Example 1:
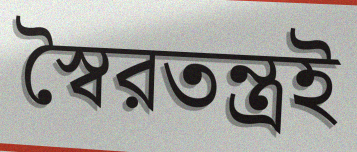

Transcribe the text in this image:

স্বৈরতন্ত্রই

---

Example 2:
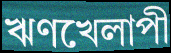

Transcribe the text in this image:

ঋণখেলাপী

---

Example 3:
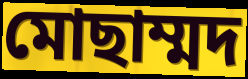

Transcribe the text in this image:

মোছাম্মদ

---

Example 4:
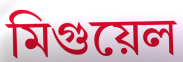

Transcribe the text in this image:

মিগুয়েল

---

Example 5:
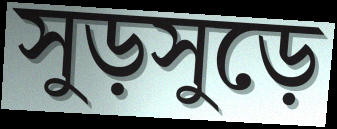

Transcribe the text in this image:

সুড়সুড়ে